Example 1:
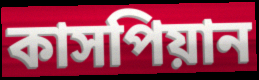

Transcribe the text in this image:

কাসপিয়ান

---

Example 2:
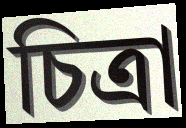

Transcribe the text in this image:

চিত্রা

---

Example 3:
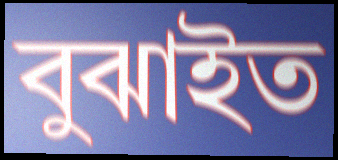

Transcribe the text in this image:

বুঝাইত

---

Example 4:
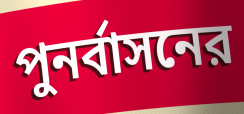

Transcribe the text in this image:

পুনর্বাসনের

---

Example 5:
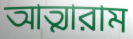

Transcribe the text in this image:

আত্মারাম